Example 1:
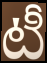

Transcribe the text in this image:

టీ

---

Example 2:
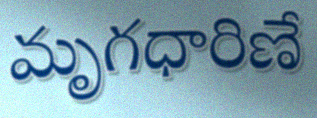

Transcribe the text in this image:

మృగధారిణే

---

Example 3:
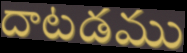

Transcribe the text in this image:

దాటడము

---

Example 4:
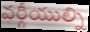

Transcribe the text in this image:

వర్గీయుల్ని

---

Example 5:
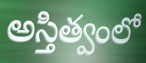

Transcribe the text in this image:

అస్తిత్వంలో